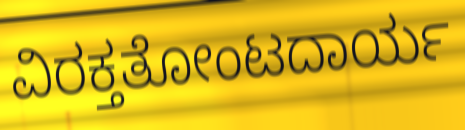
ವಿರಕ್ತತೋಂಟದಾರ್ಯ